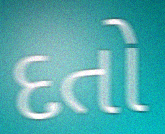
દતો